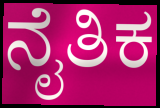
ನೈತಿಕ